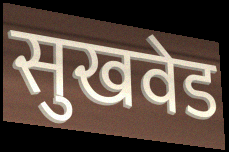
सुखवेड